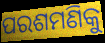
ପରଶମଣିକୁ